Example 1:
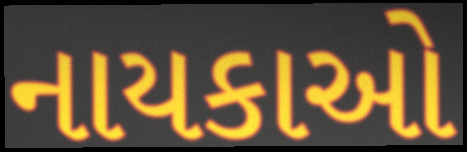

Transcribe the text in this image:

નાયકાઓ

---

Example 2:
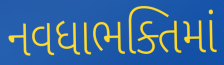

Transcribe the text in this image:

નવધાભક્તિમાં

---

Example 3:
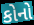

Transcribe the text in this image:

કોનો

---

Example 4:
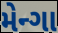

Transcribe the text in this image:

મેન્ગા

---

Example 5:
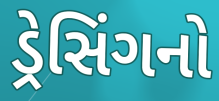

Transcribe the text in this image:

ડ્રેસિંગનો